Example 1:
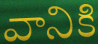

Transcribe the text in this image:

వానికి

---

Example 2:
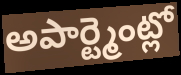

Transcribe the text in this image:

అపార్ట్మెంట్లో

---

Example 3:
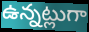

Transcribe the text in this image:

ఉన్నట్లుగా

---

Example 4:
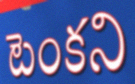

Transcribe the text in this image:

టెంకని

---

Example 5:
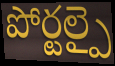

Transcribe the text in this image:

పోర్టల్పై